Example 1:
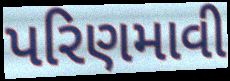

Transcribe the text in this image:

પરિણમાવી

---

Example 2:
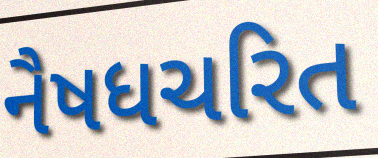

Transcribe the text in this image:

નૈષધચરિત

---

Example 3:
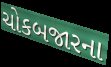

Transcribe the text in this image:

ચોકબજારના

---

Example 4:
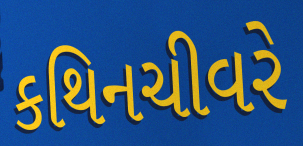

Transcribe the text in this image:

કથિનચીવરે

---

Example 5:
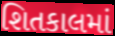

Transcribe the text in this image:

શિતકાલમાં